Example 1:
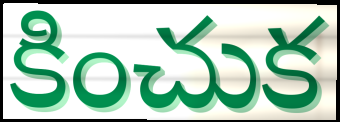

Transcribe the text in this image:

కించుక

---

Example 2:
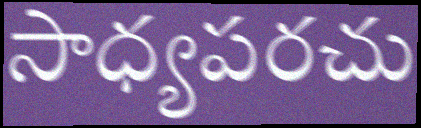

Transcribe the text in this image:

సాధ్యపరచు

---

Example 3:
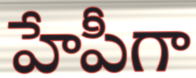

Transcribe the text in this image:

హేపీగా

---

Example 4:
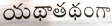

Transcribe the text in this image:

యథాతథంగా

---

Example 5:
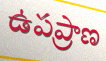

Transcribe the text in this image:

ఉపప్రాణ